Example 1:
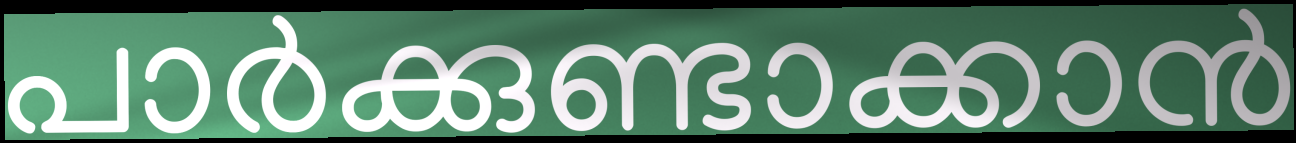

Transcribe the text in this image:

പാർക്കുണ്ടാക്കാൻ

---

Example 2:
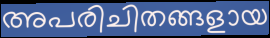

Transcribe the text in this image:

അപരിചിതങ്ങളായ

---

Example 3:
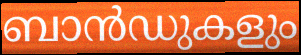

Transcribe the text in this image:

ബാൻഡുകളും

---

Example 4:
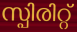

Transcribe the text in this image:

സ്പിരിറ്റ്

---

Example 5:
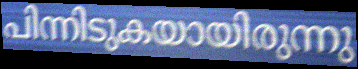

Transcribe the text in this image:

പിന്നിടുകയായിരുന്നു